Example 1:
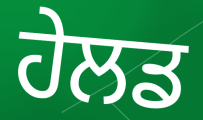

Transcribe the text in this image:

ਹੇਲਡ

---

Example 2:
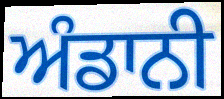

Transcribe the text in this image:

ਅੰਡਾਨੀ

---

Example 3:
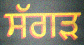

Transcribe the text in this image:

ਸੱਗੜ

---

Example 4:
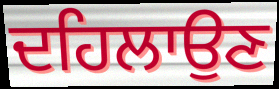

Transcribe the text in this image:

ਦਹਿਲਾਉਣ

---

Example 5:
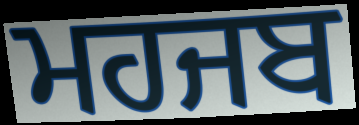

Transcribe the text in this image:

ਮਹਜਬ